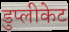
डुप्‍लीकेट